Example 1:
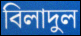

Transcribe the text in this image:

বিলাদুল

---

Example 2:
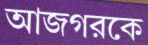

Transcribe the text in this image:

আজগরকে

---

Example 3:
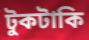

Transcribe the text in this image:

টুকটাকি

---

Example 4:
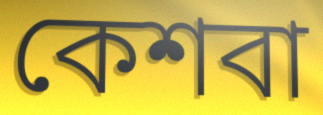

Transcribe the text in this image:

কেশবা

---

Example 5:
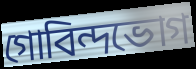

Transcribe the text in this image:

গোবিন্দভোগ